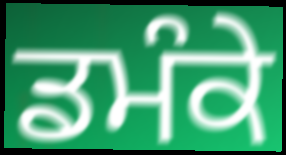
ਡਮੰਕੇ